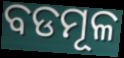
ବଡମୂଳ